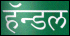
हॅन्डल